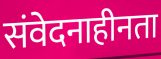
संवेदनाहीनता